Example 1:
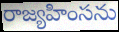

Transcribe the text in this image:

రాజ్యహింసను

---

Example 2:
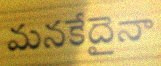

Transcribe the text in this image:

మనకేదైనా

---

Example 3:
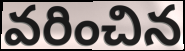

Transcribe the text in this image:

వరించిన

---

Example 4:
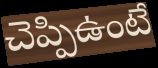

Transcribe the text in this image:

చెప్పిఉంటే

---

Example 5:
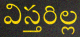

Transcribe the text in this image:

విస్తరిల్ల